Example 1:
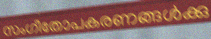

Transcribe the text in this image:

സംഗീതോപകരണങ്ങൾക്കു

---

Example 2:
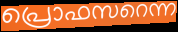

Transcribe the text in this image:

പ്രൊഫസറെന്ന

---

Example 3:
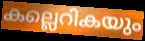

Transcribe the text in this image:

കല്ലെറികയും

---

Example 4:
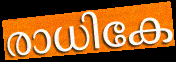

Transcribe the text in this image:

രാധികേ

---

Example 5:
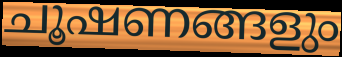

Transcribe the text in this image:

ചൂഷണങ്ങളും